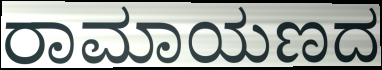
ರಾಮಾಯಣದ